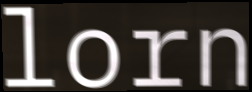
lorn